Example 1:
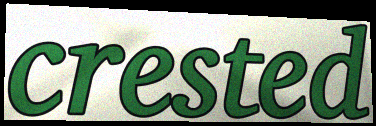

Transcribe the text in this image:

crested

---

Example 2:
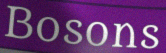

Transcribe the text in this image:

Bosons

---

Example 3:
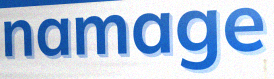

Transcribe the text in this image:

namage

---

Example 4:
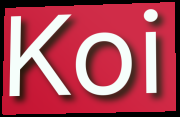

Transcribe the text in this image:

Koi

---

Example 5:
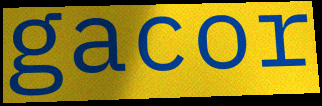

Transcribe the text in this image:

gacor